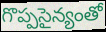
గొప్పసైన్యంతో